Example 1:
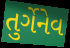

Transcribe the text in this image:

તુર્ગેનેવ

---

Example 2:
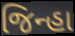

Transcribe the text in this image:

જિન્હા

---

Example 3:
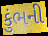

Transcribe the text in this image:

કુંભની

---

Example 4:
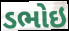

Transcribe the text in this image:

ડભોઇ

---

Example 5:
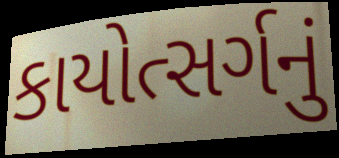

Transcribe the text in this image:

કાયોત્સર્ગનું